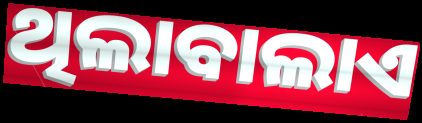
ଥିଲାବାଲାଏ